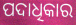
ପଦାଧିକାର